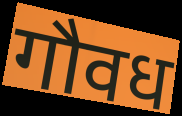
गौवध